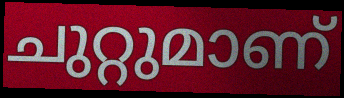
ചുറ്റുമാണ്